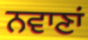
ਨਵਾਣਾਂ